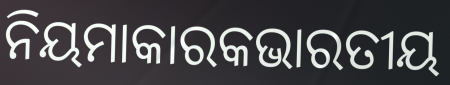
ନିୟମାକାରକଭାରତୀୟ